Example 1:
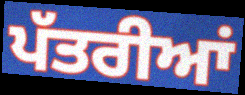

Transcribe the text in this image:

ਪੱਤਰੀਆਂ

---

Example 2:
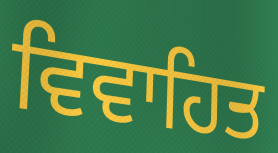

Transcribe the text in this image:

ਵਿਵਾਹਿਤ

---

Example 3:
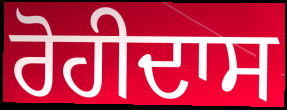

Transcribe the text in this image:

ਰੋਹੀਦਾਸ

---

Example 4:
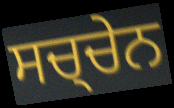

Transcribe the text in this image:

ਸਚ੍ਚੇਨ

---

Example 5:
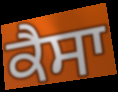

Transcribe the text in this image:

ਕੈਸਾ